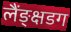
लैंङ्क्षडग